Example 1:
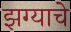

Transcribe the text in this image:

झग्याचे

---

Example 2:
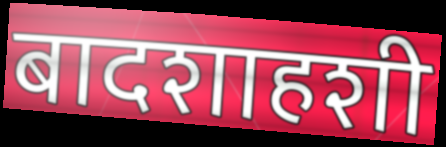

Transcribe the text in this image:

बादशाहशी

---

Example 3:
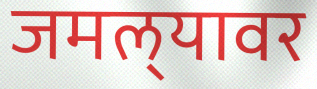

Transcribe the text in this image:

जमल्यावर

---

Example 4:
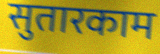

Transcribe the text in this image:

सुतारकाम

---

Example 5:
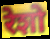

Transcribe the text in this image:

रेशो